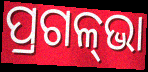
ପ୍ରଗଳ୍‌ଭା